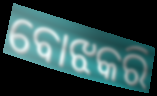
ବୋଝକରି